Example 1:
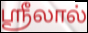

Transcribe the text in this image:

ஸ்ரீலால்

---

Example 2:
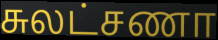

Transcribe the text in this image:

சுலட்சணா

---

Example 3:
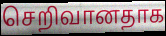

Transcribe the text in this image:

செறிவானதாக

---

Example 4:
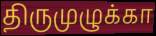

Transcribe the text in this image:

திருமுழுக்கா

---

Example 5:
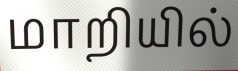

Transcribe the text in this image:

மாறியில்